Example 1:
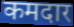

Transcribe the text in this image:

कमदार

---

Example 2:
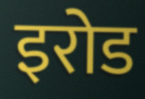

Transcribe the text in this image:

इरोड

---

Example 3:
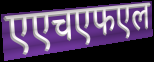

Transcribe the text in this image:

एएचएफएल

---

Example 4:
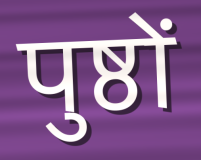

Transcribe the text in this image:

पुष्ठों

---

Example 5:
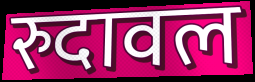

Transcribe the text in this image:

रुदावल